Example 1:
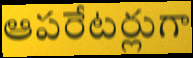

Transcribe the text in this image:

ఆపరేటర్లుగా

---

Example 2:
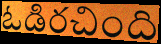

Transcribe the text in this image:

ఓడిరచింది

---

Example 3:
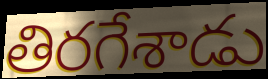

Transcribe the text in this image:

తిరగేశాడు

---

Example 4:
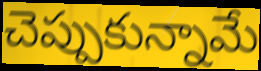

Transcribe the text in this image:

చెప్పుకున్నామే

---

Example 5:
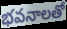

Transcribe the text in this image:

భవనాలతో